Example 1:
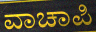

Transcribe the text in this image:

ವಾಚಾಪಿ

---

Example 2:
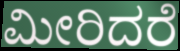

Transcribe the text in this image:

ಮೀರಿದರೆ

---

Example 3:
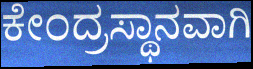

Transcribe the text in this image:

ಕೇಂದ್ರಸ್ಥಾನವಾಗಿ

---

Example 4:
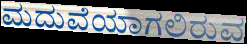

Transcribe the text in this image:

ಮದುವೆಯಾಗಲಿರುವ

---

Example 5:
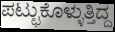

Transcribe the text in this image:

ಪಟ್ಟುಕೊಳ್ಳುತ್ತಿದ್ದ